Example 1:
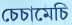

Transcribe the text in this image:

চেচামেচি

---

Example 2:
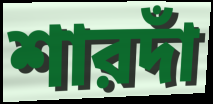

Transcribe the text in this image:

শারদাঁ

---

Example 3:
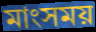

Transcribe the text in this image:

মাংসময়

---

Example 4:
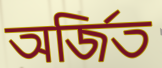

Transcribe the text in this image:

অর্জিত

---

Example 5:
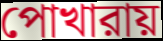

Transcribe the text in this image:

পোখারায়